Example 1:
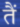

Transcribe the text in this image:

तैं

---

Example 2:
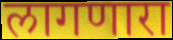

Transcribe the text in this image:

लागणारा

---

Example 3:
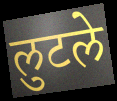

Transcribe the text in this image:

लुटले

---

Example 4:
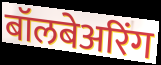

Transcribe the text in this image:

बॉलबेअरिंग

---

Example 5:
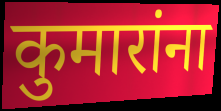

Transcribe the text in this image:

कुमारांना